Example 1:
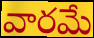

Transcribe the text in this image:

వారమే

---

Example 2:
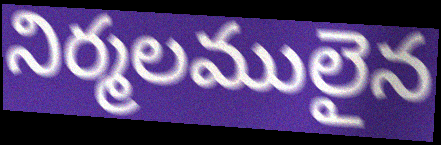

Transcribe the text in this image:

నిర్మలములైన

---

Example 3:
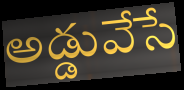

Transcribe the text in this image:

అడ్డువేసే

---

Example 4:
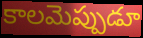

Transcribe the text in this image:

కాలమెప్పుడూ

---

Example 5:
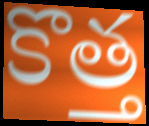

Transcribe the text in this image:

కొత్త